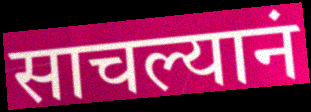
साचल्यानं